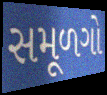
સમૂળગો